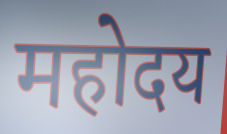
महोदय